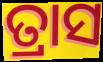
ତ୍ରାସ